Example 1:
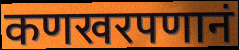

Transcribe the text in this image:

कणखरपणानं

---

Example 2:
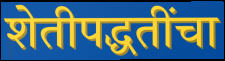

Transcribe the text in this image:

शेतीपद्धतींचा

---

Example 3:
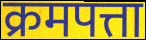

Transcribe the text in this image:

क्रमपत्ता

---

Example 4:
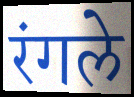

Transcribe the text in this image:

रंगले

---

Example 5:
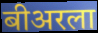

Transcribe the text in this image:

बीअरला